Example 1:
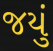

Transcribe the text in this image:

જયું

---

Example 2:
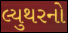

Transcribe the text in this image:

લ્યુથરનો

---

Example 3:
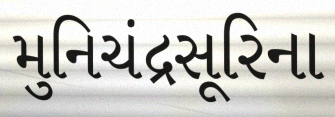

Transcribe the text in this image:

મુનિચંદ્રસૂરિના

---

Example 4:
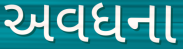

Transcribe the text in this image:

અવધના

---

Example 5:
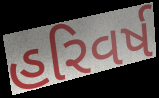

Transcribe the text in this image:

હરિવર્ષ